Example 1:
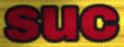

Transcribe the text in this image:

suc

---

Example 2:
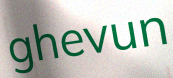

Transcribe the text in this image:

ghevun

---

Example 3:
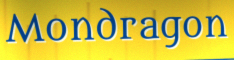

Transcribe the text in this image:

Mondragon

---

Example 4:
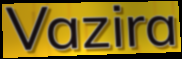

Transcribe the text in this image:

Vazira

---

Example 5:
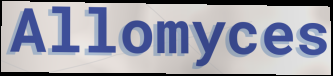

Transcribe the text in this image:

Allomyces